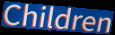
Children